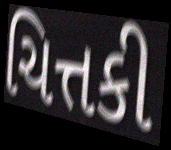
ચિત્તકી